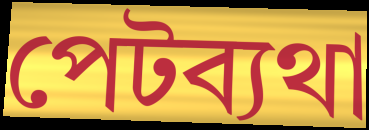
পেটব্যথা